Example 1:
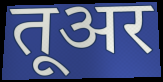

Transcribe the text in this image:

तूअर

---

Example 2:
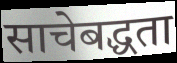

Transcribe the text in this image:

साचेबद्धता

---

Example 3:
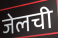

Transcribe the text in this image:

जेलची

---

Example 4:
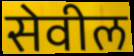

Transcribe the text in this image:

सेवील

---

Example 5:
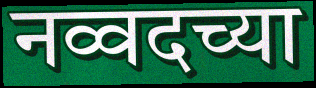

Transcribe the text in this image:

नव्वदच्या